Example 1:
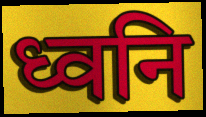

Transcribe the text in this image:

ध्‍वनि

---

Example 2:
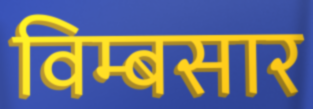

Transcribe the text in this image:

विम्बसार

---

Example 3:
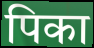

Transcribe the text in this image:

पिका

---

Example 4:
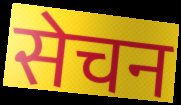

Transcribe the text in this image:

सेचन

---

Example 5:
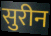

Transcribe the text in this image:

सुरीन